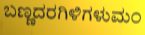
ಬಣ್ಣದರಗಿಳಿಗಳುಮಂ